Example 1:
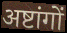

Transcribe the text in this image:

अष्टांगों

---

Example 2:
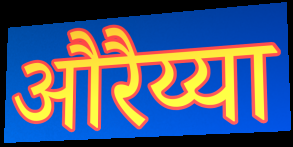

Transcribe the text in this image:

औरैय्या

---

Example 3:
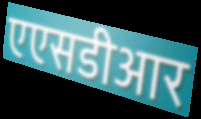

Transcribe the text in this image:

एएसडीआर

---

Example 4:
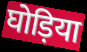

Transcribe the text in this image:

घोड़िया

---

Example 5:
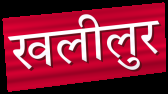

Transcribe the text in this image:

खलीलुर